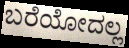
ಬರೆಯೋದಲ್ಲ